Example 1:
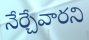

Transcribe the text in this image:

నేర్చేవారని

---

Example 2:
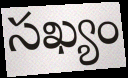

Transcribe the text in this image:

సఖ్యం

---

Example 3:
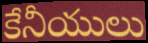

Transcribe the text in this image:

కేనీయులు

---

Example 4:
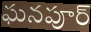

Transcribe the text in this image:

ఘనపూర్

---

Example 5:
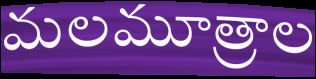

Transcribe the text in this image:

మలమూత్రాల